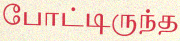
போட்டிருந்த